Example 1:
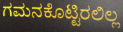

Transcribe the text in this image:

ಗಮನಕೊಟ್ಟಿರಲಿಲ್ಲ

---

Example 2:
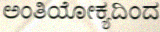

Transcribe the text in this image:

ಅಂತಿಯೋಕ್ಯದಿಂದ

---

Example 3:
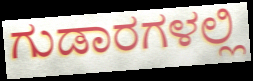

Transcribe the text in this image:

ಗುಡಾರಗಳಲ್ಲಿ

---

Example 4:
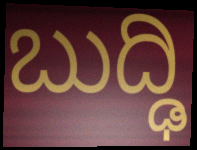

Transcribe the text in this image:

ಬುದ್ಢಿ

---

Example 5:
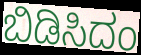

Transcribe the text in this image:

ಬಿಡಿಸಿದಂ